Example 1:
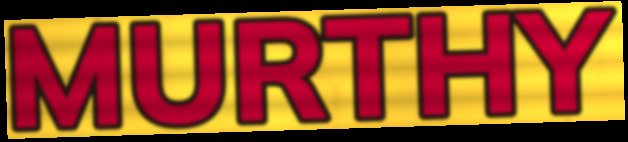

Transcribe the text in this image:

MURTHY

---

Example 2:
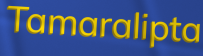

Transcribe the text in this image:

Tamaralipta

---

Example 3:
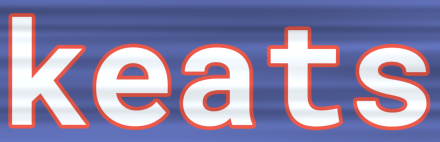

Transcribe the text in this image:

keats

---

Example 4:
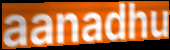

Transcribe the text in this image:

aanadhu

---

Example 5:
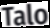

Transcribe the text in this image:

Talo